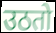
उठतो